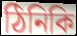
ঠিনিকি